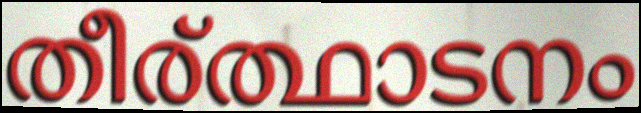
തീര്ത്ഥാടനം